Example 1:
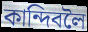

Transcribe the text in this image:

কান্দিবলৈ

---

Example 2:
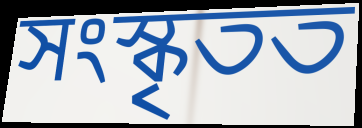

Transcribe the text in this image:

সংস্কৃতত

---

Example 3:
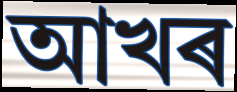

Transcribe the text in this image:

আখৰ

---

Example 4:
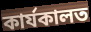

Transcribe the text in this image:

কাৰ্যকালত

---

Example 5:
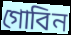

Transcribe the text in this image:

গোবিন